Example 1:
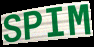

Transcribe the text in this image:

SPIM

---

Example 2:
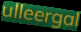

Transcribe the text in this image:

ulleergal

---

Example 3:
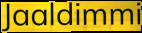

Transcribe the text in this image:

Jaaldimmi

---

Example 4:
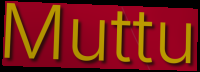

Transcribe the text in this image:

Muttu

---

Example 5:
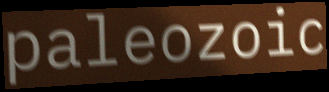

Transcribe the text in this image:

paleozoic